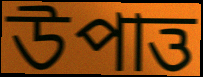
উপাত্ত